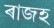
ৰাজহ